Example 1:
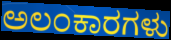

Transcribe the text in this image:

ಅಲಂಕಾರಗಳು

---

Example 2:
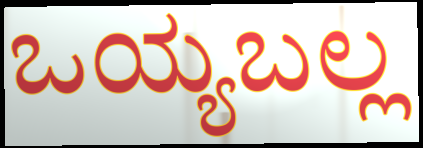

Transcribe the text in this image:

ಒಯ್ಯಬಲ್ಲ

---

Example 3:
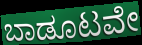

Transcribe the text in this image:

ಬಾಡೂಟವೇ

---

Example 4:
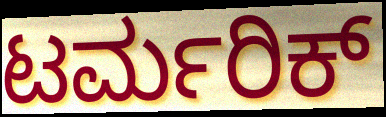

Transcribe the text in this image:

ಟರ್ಮರಿಕ್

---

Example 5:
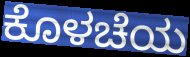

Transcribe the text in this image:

ಕೊಳಚೆಯ